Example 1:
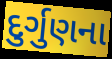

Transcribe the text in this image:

દુર્ગુણના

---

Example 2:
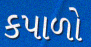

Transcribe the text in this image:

કપાળો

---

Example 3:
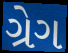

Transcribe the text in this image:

ગ્રેગ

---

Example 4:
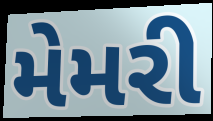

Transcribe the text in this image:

મેમરી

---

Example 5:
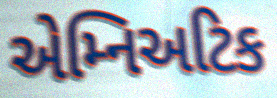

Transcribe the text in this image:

એમ્નિઅટિક